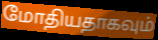
மோதியதாகவும்